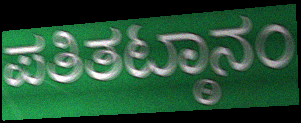
ಪತಿತಟ್ಠಾನಂ